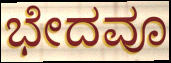
ಭೇದವೂ